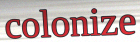
colonize